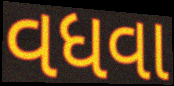
વધવા